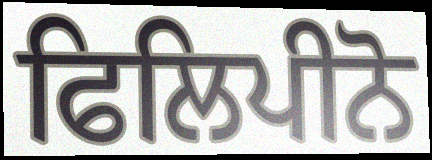
ਫਿਲਿਪੀਨੋ